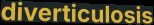
diverticulosis